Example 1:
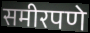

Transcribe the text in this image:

समीरपणे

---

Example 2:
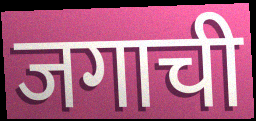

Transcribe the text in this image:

जगाची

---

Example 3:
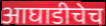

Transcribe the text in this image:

आघाडीचेच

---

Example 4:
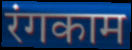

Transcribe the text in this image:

रंगकाम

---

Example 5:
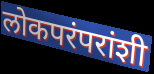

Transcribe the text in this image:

लोकपरंपरांशी